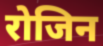
रोजिन